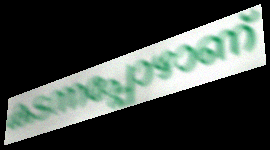
കടന്നപ്പോഴാണ്